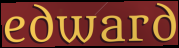
edward